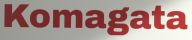
Komagata